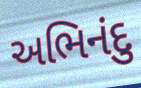
અભિનંદુ